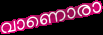
വാണൊരാ